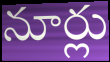
నూర్లు